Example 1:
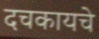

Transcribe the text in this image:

दचकायचे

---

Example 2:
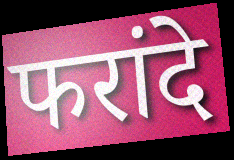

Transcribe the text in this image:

फरांदे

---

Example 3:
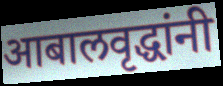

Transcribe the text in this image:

आबालवृद्धांनी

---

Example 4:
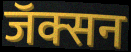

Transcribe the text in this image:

जॅक्सन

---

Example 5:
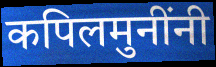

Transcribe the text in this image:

कपिलमुनींनी